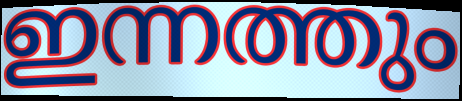
ഇന്നത്തും